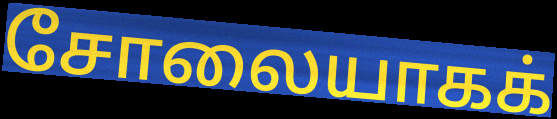
சோலையாகக்